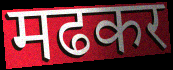
मढकर